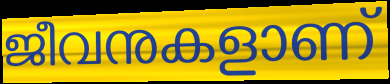
ജീവനുകളാണ്